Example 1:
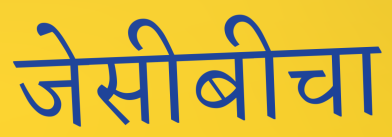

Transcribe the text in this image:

जेसीबीचा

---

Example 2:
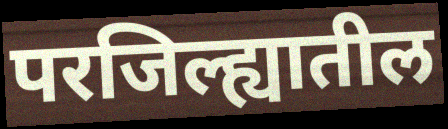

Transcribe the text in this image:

परजिल्ह्यातील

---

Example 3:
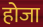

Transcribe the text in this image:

होजा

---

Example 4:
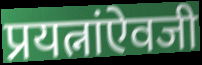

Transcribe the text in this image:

प्रयत्नांऐवजी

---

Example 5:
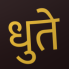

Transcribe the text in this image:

धुते